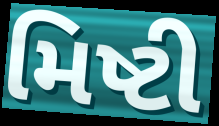
મિષ્ટી